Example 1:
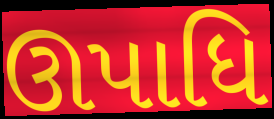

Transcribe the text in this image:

ઊપાધિ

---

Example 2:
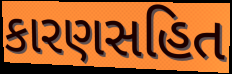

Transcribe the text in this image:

કારણસહિત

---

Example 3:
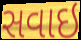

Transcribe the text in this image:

સવાઇ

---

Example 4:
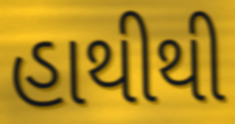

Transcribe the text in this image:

હાથીથી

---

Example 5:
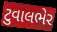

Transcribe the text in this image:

ટુવાલભેર